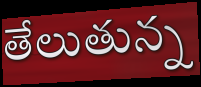
తేలుతున్న